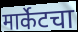
मार्केटचा